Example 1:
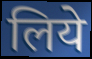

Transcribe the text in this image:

लिये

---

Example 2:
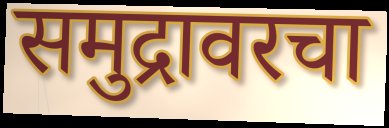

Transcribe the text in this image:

समुद्रावरचा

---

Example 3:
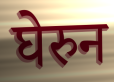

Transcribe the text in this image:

घेरुन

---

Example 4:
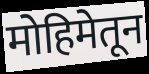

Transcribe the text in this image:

मोहिमेतून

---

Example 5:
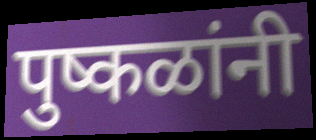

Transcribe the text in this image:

पुष्कळांनी